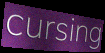
cursing